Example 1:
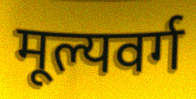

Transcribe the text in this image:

मूल्यवर्ग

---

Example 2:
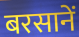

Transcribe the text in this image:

बरसानें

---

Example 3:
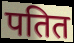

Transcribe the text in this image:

पतित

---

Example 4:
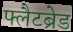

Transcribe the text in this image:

फ्लैटब्रेड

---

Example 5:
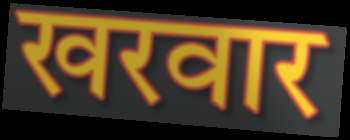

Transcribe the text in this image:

खरवार